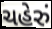
ચહેરું